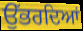
ਉੱਭਰਦਿਆਂ